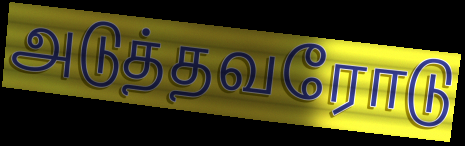
அடுத்தவரோடு